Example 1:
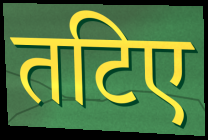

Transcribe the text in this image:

तटिए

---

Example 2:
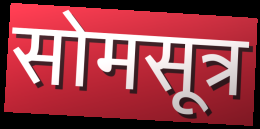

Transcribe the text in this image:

सोमसूत्र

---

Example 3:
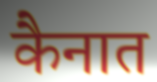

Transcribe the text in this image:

कैनात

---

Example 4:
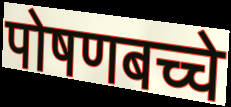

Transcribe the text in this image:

पोषणबच्चे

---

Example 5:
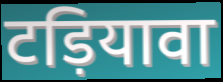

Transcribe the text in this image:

टड़ियावा